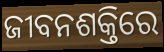
ଜୀବନଶକ୍ତିରେ